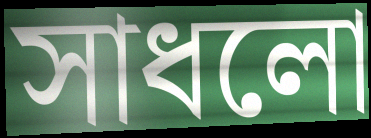
সাধলো